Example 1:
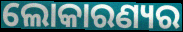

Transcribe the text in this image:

ଲୋକାରଣ୍ୟର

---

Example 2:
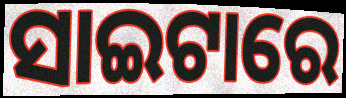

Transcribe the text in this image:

ସାଇଟାରେ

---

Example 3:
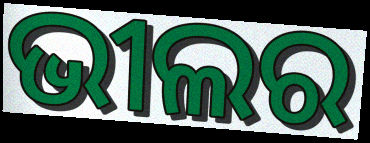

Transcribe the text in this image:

ଭୀଲର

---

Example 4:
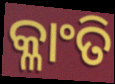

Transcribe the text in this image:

କ୍ଳାଂତି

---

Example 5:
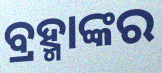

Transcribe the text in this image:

ବ୍ରହ୍ମାଙ୍କର